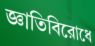
জ্ঞাতিবিরোধে